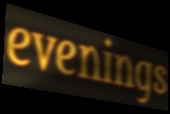
evenings